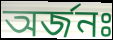
অর্জনঃ